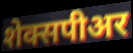
शेक्सपीअर